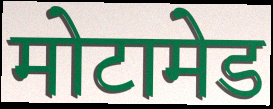
मोटामेड